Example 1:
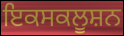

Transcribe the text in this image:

ਇਕਸਕਲੂਸ਼ਨ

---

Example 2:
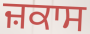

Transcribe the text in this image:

ਜ਼ਕਾਸ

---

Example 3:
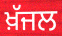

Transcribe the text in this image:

ਖ਼ੱਜਲ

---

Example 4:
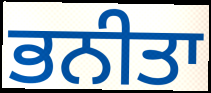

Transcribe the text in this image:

ਭਨੀਤਾ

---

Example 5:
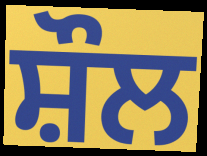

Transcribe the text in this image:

ਸ਼ੌਲ